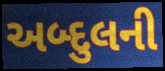
અબ્દુલની